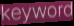
keyword